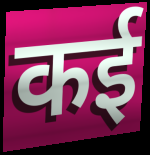
कई